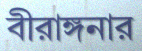
বীরাঙ্গনার